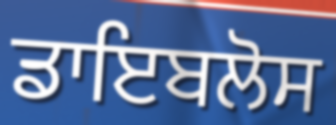
ਡਾਇਬਲੋਸ